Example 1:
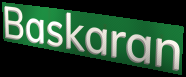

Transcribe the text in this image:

Baskaran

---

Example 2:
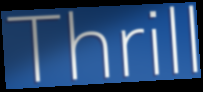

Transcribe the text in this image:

Thrill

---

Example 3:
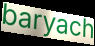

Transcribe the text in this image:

baryach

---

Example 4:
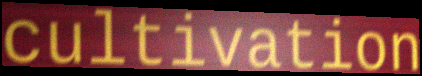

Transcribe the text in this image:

cultivation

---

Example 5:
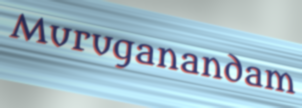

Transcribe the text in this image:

Muruganandam